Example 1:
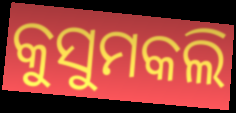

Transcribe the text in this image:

କୁସୁମକଲି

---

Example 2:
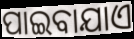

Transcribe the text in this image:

ପାଇବାଯାଏ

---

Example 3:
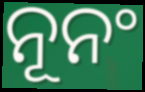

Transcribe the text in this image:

ନୂନଂ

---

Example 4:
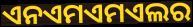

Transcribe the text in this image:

ଏନଏମଏମଏଲର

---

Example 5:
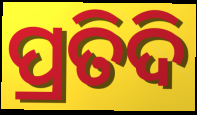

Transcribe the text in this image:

ପ୍ରତିଦି